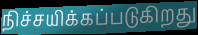
நிச்சயிக்கப்படுகிறது